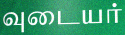
வுடையர்